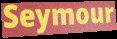
Seymour